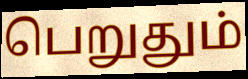
பெறுதும்